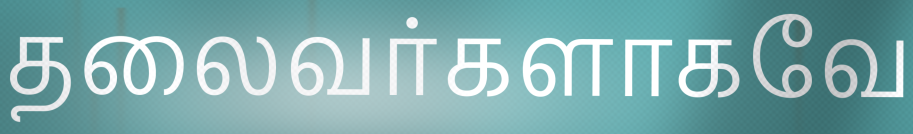
தலைவர்களாகவே